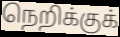
நெறிக்குக்